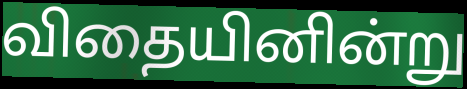
விதையினின்று